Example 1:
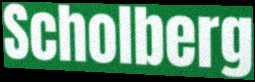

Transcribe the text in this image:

Scholberg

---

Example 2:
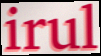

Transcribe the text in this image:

irul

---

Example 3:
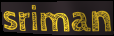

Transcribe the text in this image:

sriman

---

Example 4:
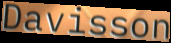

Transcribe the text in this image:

Davisson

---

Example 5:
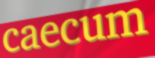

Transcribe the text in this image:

caecum